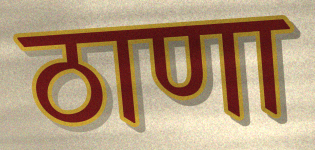
ठाणा